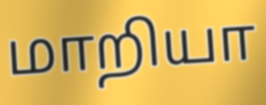
மாறியா